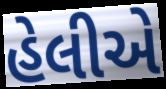
હેલીએ